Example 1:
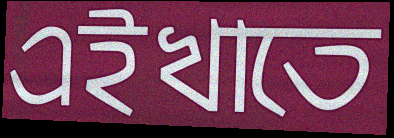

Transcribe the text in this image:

এইখাতে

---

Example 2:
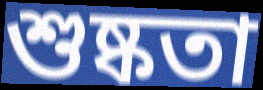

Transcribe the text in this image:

শুষ্কতা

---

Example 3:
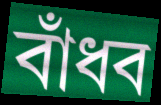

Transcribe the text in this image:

বাঁধব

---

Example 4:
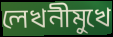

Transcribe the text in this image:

লেখনীমুখে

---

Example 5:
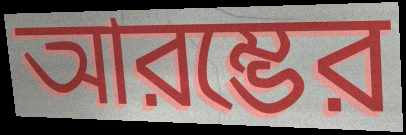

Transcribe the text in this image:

আরম্ভের